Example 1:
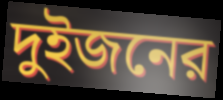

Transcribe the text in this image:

দুইজনের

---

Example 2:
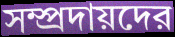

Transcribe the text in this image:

সম্প্রদায়দের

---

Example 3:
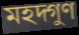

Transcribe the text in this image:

মহদ্গুণ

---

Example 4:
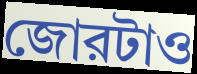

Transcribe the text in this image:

জোরটাও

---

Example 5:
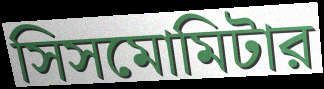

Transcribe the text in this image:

সিসমোমিটার